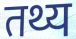
तथ्य